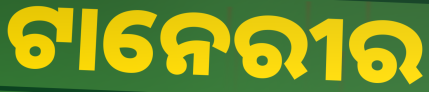
ଟାନେରୀର